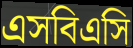
এসবিএসি